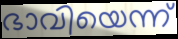
ഭാവിയെന്ന്